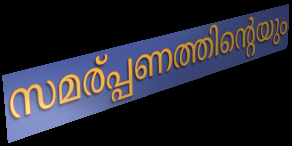
സമര്പ്പണത്തിന്റെയും